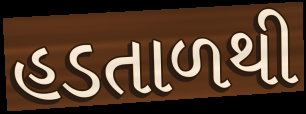
હડતાળથી